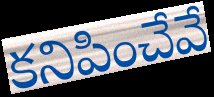
కనిపించేవే